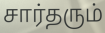
சார்தரும்